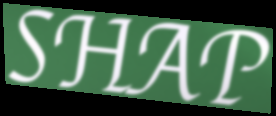
SHAP